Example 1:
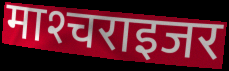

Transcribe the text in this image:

माश्चराइजर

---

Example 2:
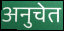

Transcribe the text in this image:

अनुचेत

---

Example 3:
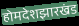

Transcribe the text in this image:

होमदेशझारखंड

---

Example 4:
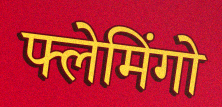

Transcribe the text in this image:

फ्लेमिंगो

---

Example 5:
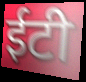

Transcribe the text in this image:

ईटी